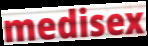
medisex